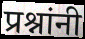
प्रश्नांनी